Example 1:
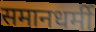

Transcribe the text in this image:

समानधर्मी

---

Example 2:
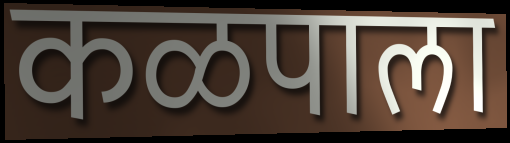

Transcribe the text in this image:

कळपाला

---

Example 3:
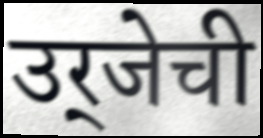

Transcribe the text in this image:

उर्जेची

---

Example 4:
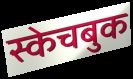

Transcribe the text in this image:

स्केचबुक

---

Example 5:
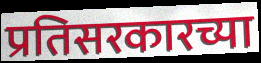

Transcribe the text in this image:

प्रतिसरकारच्या